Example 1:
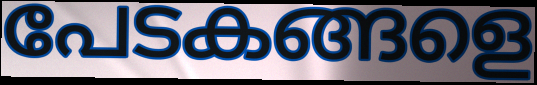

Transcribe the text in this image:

പേടകങ്ങളെ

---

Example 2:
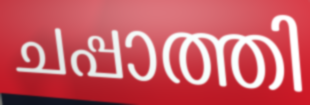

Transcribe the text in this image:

ചപ്പാത്തി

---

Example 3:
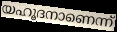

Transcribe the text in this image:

യഹൂദനാണെന്ന്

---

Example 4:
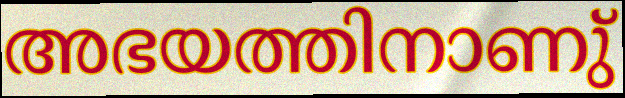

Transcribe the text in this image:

അഭയത്തിനാണു്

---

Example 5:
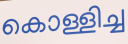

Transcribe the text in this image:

കൊള്ളിച്ച